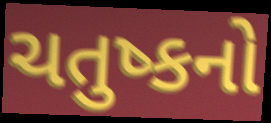
ચતુષ્કનો